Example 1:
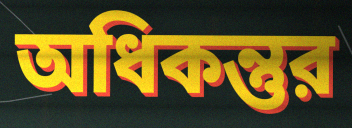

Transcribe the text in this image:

অধিকন্তুর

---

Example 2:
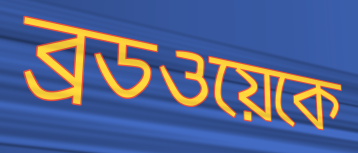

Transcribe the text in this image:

ব্রডওয়েকে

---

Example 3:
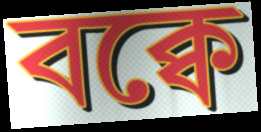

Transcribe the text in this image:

বক্বে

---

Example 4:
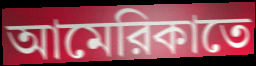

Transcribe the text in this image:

আমেরিকাতে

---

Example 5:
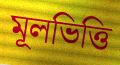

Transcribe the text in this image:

মূলভিত্তি